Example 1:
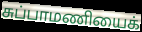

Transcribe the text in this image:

சுப்பாமணியைக்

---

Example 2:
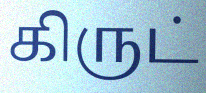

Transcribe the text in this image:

கிருட்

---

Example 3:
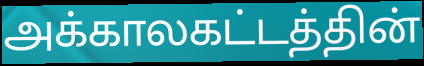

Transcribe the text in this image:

அக்காலகட்டத்தின்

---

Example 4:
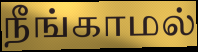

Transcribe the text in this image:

நீங்காமல்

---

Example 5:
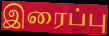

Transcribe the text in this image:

இரைப்பு